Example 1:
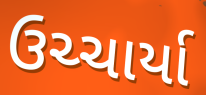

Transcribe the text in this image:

ઉચ્ચાર્યા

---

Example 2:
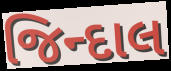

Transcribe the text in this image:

જિન્દાલ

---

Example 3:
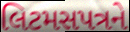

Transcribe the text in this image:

લિટમસપત્રને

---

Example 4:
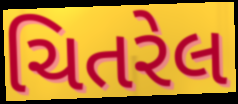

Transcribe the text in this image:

ચિતરેલ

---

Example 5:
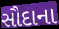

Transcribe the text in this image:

સૌદાના